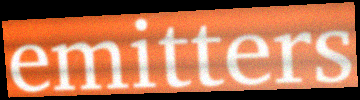
emitters